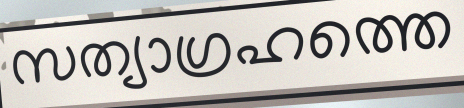
സത്യാഗ്രഹത്തെ